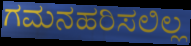
ಗಮನಹರಿಸಲಿಲ್ಲ